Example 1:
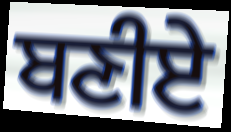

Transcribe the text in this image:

ਬਣੀਏ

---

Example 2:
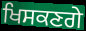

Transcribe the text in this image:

ਖਿਸਕਣਗੇ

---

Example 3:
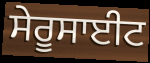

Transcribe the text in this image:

ਸੇਰੂਸਾਈਟ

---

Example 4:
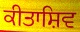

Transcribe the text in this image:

ਕੀਤਾਸ਼ਿਵ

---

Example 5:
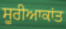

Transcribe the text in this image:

ਸੂਰੀਆਕਾਂਤ